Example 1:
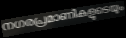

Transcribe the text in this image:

നഗരപ്രമാണികളുടെയും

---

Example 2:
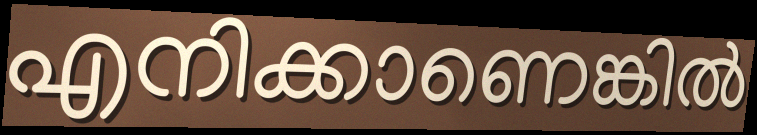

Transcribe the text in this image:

എനിക്കാണെങ്കിൽ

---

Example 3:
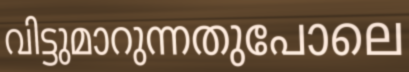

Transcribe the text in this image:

വിട്ടുമാറുന്നതുപോലെ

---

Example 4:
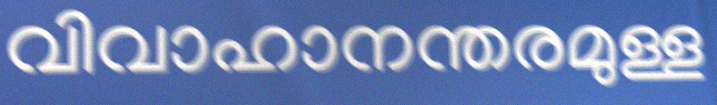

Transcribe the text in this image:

വിവാഹാനന്തരമുള്ള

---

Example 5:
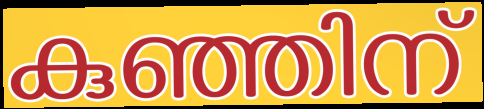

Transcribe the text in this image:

കുഞ്ഞിന്